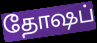
தோஷப்